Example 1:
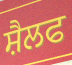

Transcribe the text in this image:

ਸ਼ੈਲਫ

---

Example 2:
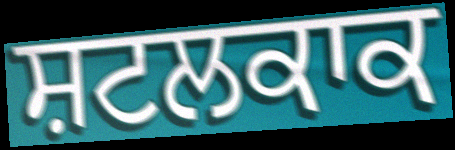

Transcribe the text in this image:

ਸ਼ਟਲਕਾਕ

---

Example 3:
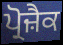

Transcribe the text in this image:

ਪ੍ਰੋਜ਼ੈਕ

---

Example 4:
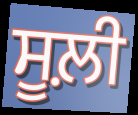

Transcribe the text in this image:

ਸੂਲ਼ੀ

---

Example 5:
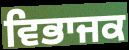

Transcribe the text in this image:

ਵਿਭਾਜਕ